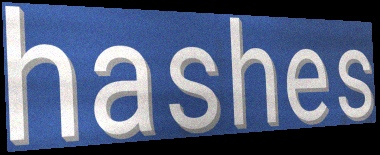
hashes